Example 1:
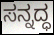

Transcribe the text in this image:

ಸನ್ನದ್ಧ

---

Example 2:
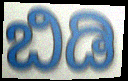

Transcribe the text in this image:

ಬಿಡಿ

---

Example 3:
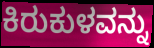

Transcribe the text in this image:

ಕಿರುಕುಳವನ್ನು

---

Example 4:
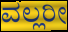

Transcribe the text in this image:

ವಲ್ಲರೀ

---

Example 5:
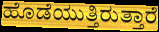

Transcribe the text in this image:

ಹೊಡೆಯುತ್ತಿರುತ್ತಾರೆ